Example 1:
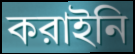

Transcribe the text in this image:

করাইনি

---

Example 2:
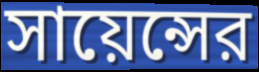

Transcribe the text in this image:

সায়েন্সের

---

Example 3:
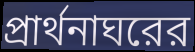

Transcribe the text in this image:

প্রার্থনাঘরের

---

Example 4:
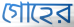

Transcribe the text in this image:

গোহের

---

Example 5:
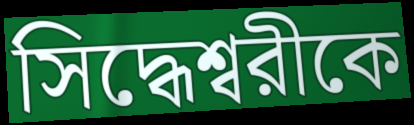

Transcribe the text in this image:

সিদ্ধেশ্বরীকে